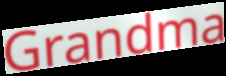
Grandma